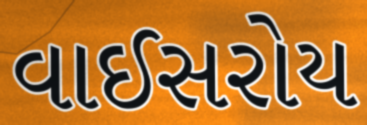
વાઈસરોય